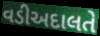
વડીઅદાલતે